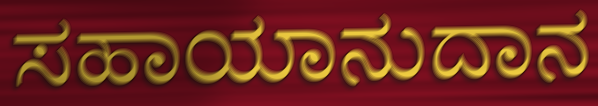
ಸಹಾಯಾನುದಾನ